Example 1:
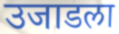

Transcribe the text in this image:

उजाडला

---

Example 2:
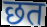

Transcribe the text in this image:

छत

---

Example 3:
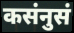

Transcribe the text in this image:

कसंनुसं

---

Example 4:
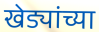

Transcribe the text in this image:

खेड्यांच्या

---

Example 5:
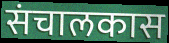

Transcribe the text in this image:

संचालकास